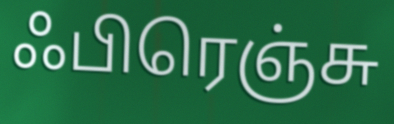
ஃபிரெஞ்சு